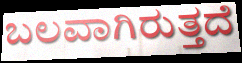
ಬಲವಾಗಿರುತ್ತದೆ